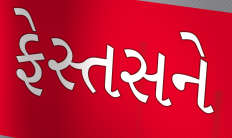
ફેસ્તસને